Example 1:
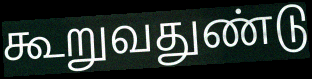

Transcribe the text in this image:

கூறுவதுண்டு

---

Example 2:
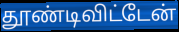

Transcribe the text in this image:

தூண்டிவிட்டேன்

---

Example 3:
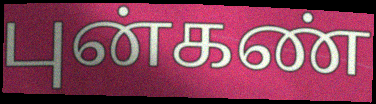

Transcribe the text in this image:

புன்கண்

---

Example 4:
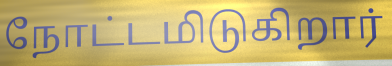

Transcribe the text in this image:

நோட்டமிடுகிறார்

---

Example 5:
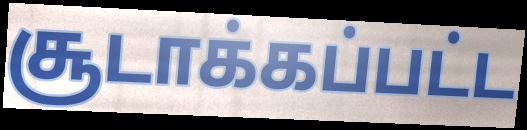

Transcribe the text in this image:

சூடாக்கப்பட்ட